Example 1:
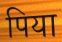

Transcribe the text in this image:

पिया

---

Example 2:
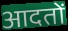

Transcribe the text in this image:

आदतों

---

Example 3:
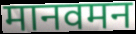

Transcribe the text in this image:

मानवमन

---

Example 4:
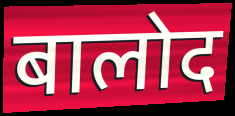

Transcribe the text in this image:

बालोद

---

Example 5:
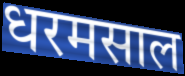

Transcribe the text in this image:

धरमसाल